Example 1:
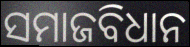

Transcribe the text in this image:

ସମାଜବିଧାନ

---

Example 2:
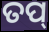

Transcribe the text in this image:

ତପ୍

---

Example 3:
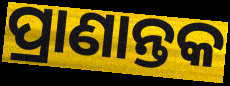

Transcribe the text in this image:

ପ୍ରାଣାନ୍ତକ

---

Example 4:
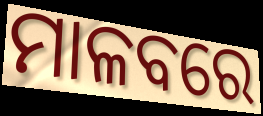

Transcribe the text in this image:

ମାଳବରେ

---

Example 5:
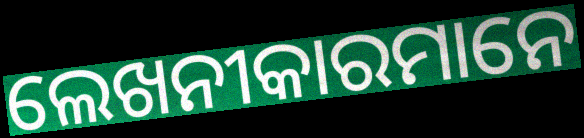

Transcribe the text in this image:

ଲେଖନୀକାରମାନେ